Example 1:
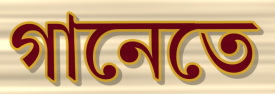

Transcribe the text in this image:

গানেতে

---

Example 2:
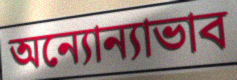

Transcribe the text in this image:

অন্যোন্যাভাব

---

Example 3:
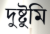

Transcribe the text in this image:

দুষ্টুমি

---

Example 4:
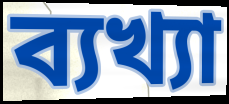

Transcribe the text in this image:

ব্যখ্যা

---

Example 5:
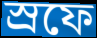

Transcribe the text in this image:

স্রফে